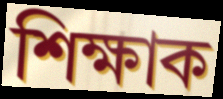
শিক্ষাক